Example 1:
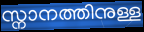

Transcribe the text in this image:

സ്നാനത്തിനുള്ള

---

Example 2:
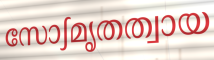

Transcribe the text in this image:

സോഽമൃതത്വായ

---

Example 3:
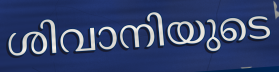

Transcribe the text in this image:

ശിവാനിയുടെ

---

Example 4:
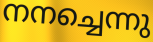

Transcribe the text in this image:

നനച്ചെന്നു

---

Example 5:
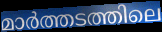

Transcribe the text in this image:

മാർത്തടത്തിലെ